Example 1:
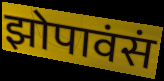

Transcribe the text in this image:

झोपावंसं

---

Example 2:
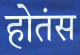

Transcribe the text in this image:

होतंस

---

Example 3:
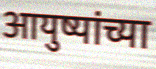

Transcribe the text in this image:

आयुष्यांच्या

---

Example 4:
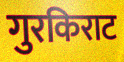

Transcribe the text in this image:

गुरकिराट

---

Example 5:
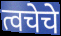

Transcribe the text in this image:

त्वचेचे